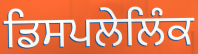
ਡਿਸਪਲੇਲਿੰਕ